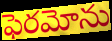
ఫెరమోను